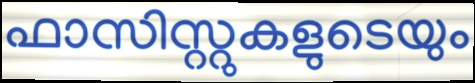
ഫാസിസ്റ്റുകളുടെയും